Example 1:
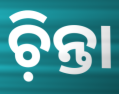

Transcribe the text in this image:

ଚ଼ିନ୍ତା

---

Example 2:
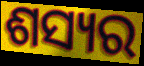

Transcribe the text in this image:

ଶସ୍ଯର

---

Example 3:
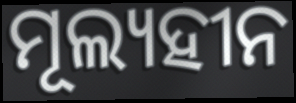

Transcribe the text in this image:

ମୂଲ୍ଯହୀନ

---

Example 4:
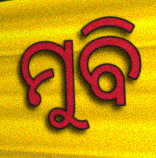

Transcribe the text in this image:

ମୁବି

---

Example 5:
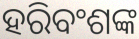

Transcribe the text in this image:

ହରିବଂଶଙ୍କ